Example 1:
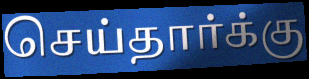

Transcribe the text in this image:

செய்தார்க்கு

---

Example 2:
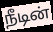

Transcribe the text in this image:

நீடின்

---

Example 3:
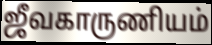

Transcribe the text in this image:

ஜீவகாருணியம்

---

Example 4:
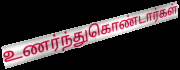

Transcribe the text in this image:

உணர்ந்துகொண்டார்கள்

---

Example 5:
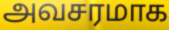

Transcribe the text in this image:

அவசரமாக